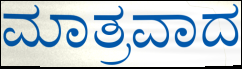
ಮಾತ್ರವಾದ